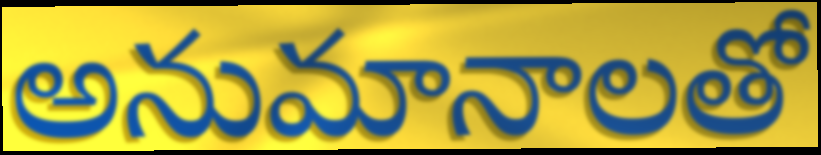
అనుమానాలతో